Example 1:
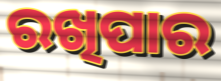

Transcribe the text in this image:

ରଖିପାର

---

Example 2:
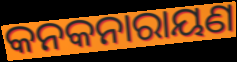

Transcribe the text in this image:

କନକନାରାୟଣ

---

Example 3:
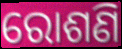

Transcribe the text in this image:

ରୋଶଣି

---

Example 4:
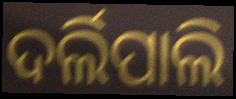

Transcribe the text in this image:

ଦର୍ଲିପାଲି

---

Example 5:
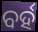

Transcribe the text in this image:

ବର୍ହ